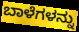
ಬಾಳೆಗಳನ್ನು